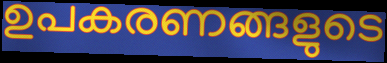
ഉപകരണങ്ങളുടെ